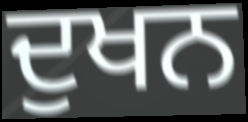
ਦੁਖਨ